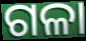
ଗଳା